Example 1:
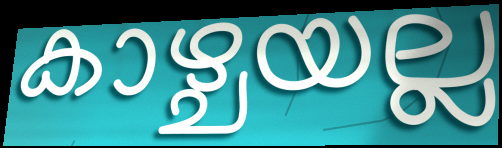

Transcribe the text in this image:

കാഴ്ചയല്ല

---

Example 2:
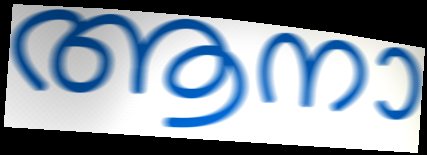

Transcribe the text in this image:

ആനാ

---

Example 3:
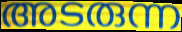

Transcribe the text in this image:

അടരുന്ന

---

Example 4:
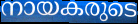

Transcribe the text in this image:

നായകരുടെ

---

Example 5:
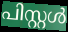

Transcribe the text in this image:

പിസ്റ്റൾ